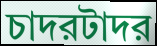
চাদরটাদর